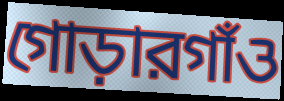
গোড়ারগাঁও